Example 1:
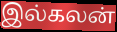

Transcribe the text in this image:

இல்கலன்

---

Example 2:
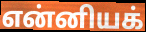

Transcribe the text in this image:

என்னியக்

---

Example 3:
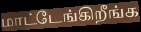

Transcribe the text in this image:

மாட்டேங்கிறீங்க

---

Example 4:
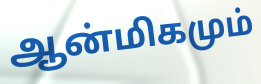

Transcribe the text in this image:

ஆன்மிகமும்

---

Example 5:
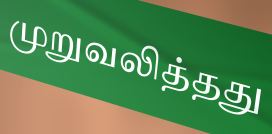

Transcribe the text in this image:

முறுவலித்தது